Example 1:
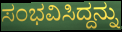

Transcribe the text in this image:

ಸಂಭವಿಸಿದ್ದನ್ನು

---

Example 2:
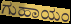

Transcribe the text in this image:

ಗುಹಾಯಂ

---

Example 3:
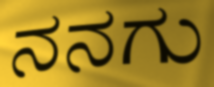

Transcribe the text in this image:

ನನಗು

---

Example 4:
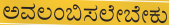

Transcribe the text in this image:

ಅವಲಂಬಿಸಲೇಬೇಕು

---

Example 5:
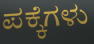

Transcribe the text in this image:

ಪಕ್ಕೆಗಳು